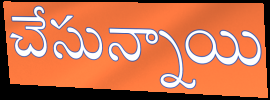
చేసున్నాయి